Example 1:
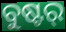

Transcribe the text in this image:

ବୁଷ୍ଟର୍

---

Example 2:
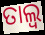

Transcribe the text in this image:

ତାଲ୍ୱ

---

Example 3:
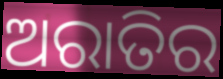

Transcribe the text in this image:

ଅରାତିର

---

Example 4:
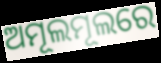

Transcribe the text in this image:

ଅମୂଲମୂଲରେ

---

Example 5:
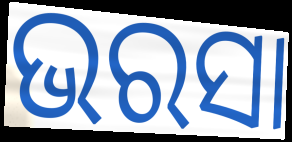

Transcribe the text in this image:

ଭରସା